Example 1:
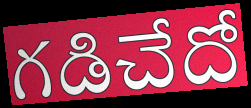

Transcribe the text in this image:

గడిచేదో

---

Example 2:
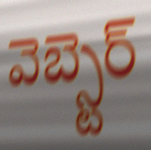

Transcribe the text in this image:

వెబ్స్టెర్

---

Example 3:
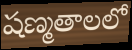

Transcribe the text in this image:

షణ్మతాలలో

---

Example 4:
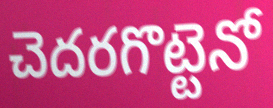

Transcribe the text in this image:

చెదరగొట్టెనో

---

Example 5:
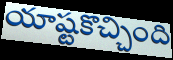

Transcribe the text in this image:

యాష్టకొచ్చింది